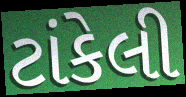
ટાંકેલી